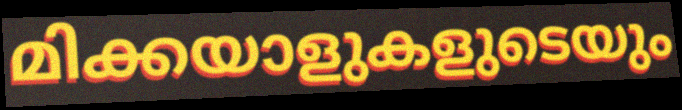
മിക്കയാളുകളുടെയും